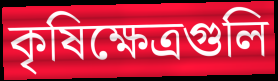
কৃষিক্ষেত্রগুলি